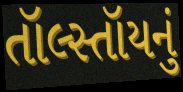
તૉલ્સ્તૉયનું